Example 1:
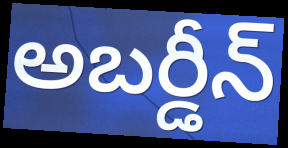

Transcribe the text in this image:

అబర్డీన్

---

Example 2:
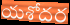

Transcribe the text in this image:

యశోదర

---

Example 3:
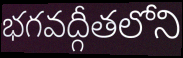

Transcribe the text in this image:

భగవద్గీతలోని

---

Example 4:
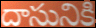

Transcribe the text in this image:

దాసునికి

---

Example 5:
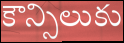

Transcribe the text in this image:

కౌన్సిలుకు